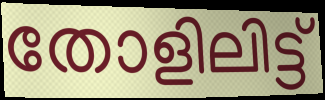
തോളിലിട്ട്